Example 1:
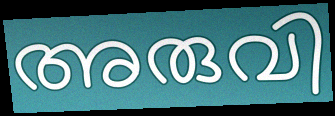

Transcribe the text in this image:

അരുവി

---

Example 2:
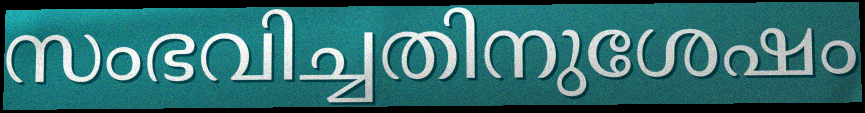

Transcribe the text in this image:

സംഭവിച്ചതിനുശേഷം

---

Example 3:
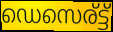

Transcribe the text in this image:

ഡെസെര്ട്ട്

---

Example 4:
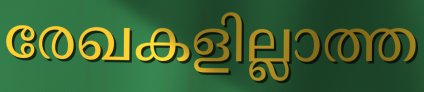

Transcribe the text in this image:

രേഖകളില്ലാത്ത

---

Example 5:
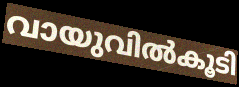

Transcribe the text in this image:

വായുവിൽകൂടി